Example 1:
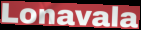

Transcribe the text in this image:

Lonavala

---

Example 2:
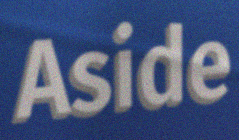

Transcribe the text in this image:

Aside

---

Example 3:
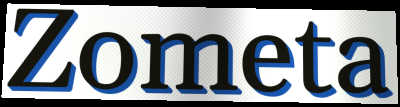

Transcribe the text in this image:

Zometa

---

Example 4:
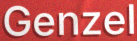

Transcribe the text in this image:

Genzel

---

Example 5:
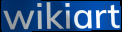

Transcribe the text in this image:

wikiart